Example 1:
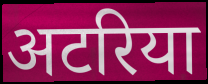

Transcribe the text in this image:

अटरिया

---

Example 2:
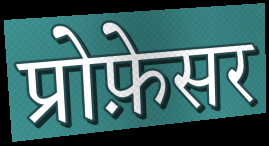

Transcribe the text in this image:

प्रोफ़ेसर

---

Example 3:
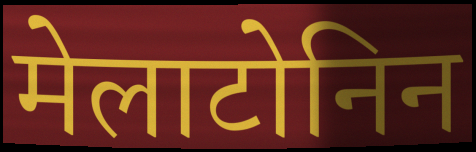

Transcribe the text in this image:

मेलाटोनिन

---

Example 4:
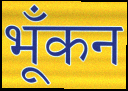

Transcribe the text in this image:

भूँकन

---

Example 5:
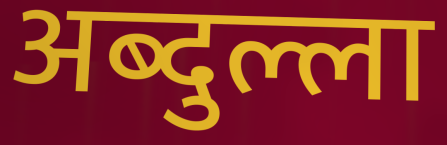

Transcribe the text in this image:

अब्दुल्ला